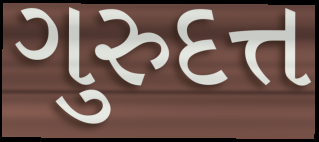
ગુરુદત્ત